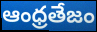
ఆంధ్రతేజం